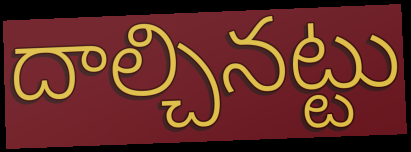
దాల్చినట్టు